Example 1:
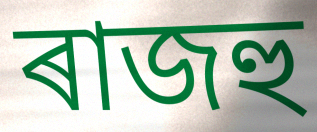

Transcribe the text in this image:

ৰাজহু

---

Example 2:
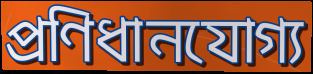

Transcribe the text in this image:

প্ৰণিধানযোগ্য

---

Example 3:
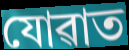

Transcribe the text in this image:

যোৱাত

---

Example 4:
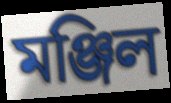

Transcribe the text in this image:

মঞ্জিল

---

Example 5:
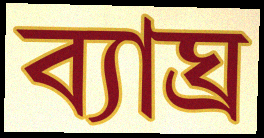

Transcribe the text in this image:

ব্যাঘ্ৰ